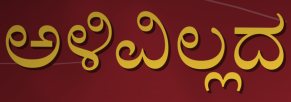
ಅಳಿವಿಲ್ಲದ